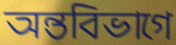
অন্তবিভাগে